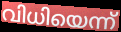
വിധിയെന്ന്